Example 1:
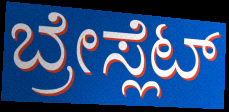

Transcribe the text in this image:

ಬ್ರೇಸ್ಲೆಟ್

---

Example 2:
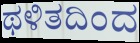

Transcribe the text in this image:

ಥಳಿತದಿಂದ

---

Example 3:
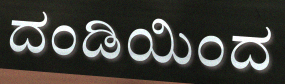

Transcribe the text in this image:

ದಂಡಿಯಿಂದ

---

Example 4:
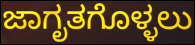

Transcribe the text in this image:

ಜಾಗೃತಗೊಳ್ಳಲು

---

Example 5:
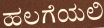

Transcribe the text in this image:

ಹಲಗೆಯಲಿ